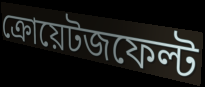
ক্রোয়েটজফেল্ট